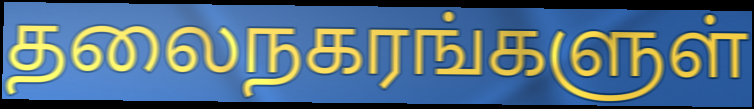
தலைநகரங்களுள்